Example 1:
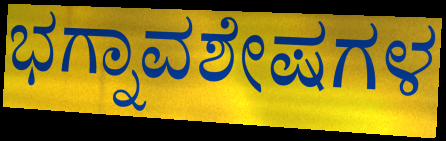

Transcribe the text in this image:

ಭಗ್ನಾವಶೇಷಗಳ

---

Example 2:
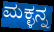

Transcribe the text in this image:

ಮಕ್ಳನ್ನ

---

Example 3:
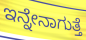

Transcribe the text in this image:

ಇನ್ನೇನಾಗುತ್ತೆ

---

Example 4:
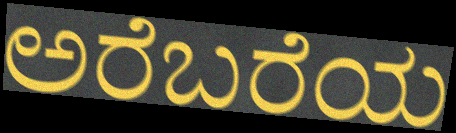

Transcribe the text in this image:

ಅರೆಬರೆಯ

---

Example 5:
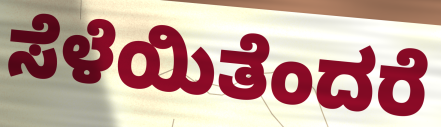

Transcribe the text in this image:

ಸೆಳೆಯಿತೆಂದರೆ